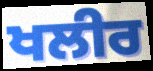
ਖਲੀਰ